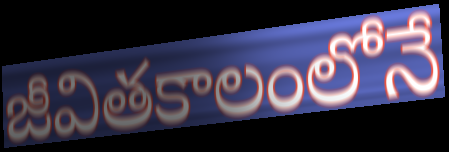
జీవితకాలంలోనే